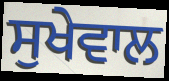
ਸੁਖੇਵਾਲ